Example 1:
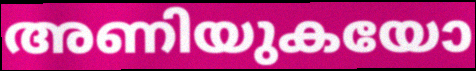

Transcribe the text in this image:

അണിയുകയോ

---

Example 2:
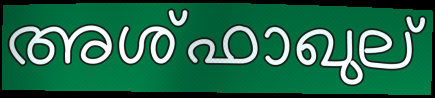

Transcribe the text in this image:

അശ്ഫാഖുല്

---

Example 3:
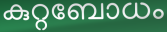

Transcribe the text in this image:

കുറ്റബോധം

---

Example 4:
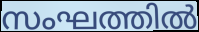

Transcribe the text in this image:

സംഘത്തിൽ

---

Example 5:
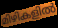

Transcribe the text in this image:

മിഴികളിൽ